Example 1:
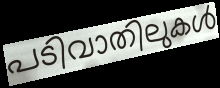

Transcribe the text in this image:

പടിവാതിലുകൾ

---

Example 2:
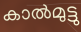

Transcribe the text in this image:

കാൽമുട്ടു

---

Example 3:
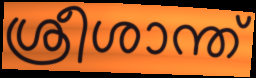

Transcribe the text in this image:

ശ്രീശാന്ത്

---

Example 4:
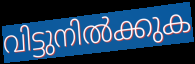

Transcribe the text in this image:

വിട്ടുനിൽക്കുക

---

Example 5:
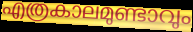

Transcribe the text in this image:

എത്രകാലമുണ്ടാവും